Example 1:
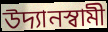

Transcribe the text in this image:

উদ্যানস্বামী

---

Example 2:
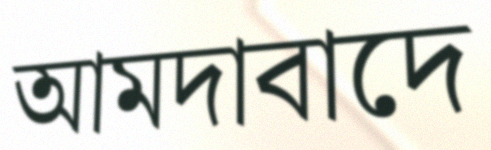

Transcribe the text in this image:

আমদাবাদে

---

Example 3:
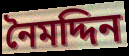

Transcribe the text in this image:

নৈমদ্দিন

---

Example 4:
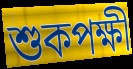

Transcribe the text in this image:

শুকপক্ষী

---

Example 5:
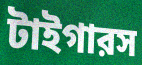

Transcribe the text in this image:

টাইগারস